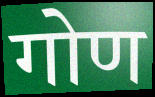
गोण